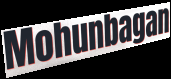
Mohunbagan